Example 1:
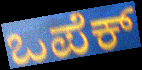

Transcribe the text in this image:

ಒಪೆಕ್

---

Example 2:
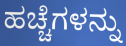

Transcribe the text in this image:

ಹಚ್ಚೆಗಳನ್ನು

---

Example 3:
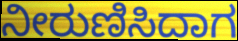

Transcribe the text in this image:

ನೀರುಣಿಸಿದಾಗ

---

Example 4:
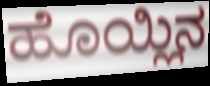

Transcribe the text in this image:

ಹೊಯ್ಲಿನ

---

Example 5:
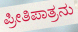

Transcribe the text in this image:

ಪ್ರೀತಿಪಾತ್ರನು